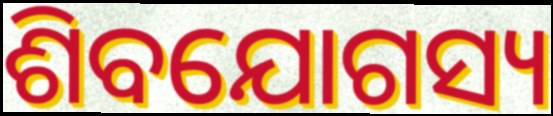
ଶିବଯୋଗସ୍ୟ